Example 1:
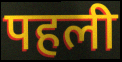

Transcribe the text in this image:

पहली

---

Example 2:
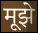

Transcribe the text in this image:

मूझे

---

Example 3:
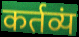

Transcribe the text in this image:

कर्तव्यं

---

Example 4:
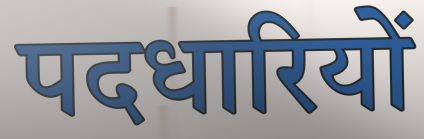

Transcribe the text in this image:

पदधारियों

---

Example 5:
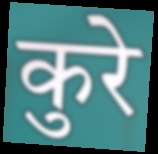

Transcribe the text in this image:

कुरे